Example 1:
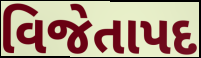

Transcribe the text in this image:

વિજેતાપદ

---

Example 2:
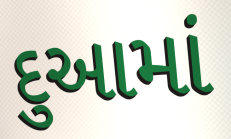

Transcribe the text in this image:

દુઆમાં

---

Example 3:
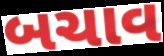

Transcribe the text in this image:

બચાવ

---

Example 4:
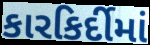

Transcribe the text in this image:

કારકિર્દીમાં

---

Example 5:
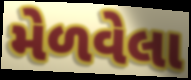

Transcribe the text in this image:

મેળવેલા